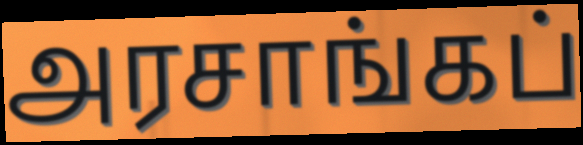
அரசாங்கப்